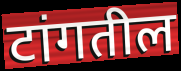
टांगतील